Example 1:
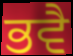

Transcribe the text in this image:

ਭਵੈ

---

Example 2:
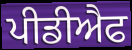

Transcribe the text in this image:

ਪੀਡੀਐਫ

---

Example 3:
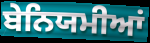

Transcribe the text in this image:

ਬੇਨਿਯਮੀਆਂ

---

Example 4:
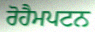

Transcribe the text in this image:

ਰੋਹੈਮਪਟਨ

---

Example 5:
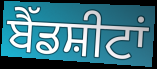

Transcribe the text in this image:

ਬੈੱਡਸ਼ੀਟਾਂ